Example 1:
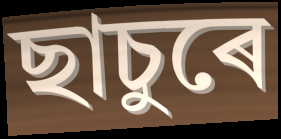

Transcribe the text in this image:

ছাচুৰে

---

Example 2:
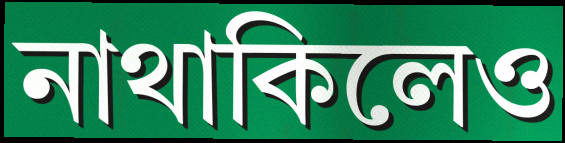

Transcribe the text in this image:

নাথাকিলেও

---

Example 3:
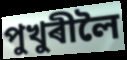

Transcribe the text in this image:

পুখুৰীলৈ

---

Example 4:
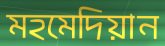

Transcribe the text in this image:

মহমেদিয়ান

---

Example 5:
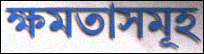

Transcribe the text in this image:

ক্ষমতাসমূহ